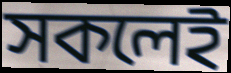
সকলেই